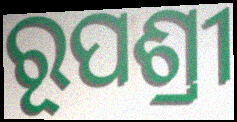
ରୂପଶ୍ରୀ